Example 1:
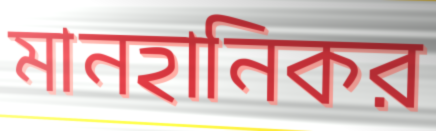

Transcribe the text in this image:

মানহানিকর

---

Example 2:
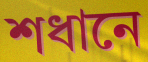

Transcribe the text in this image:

শধানে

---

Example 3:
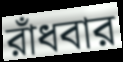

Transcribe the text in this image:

রাঁধবার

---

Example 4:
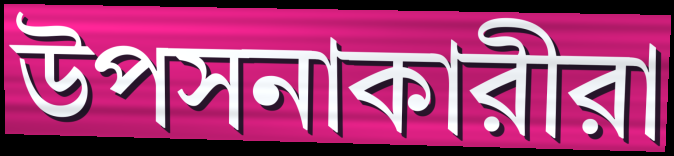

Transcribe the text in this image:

উপসনাকারীরা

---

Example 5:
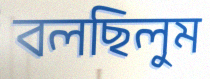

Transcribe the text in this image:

বলছিলুম